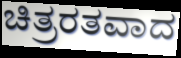
ಚಿತ್ರರತವಾದ